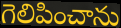
గెలిపించాను